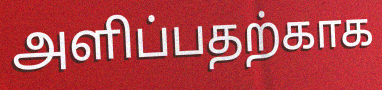
அளிப்பதற்காக